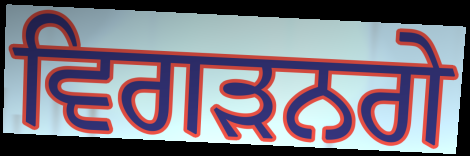
ਵਿਗੜਨਗੇ